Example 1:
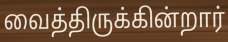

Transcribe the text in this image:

வைத்திருக்கின்றார்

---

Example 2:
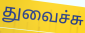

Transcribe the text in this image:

துவைச்சு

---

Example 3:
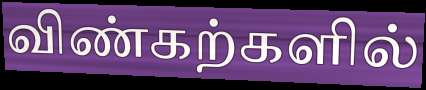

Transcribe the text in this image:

விண்கற்களில்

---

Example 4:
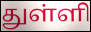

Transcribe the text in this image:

துள்ளி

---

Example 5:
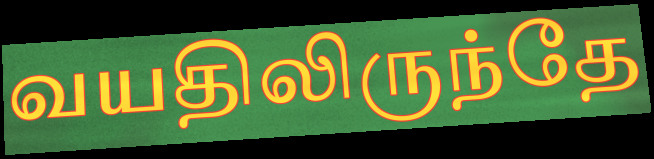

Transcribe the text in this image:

வயதிலிருந்தே